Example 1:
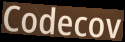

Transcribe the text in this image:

Codecov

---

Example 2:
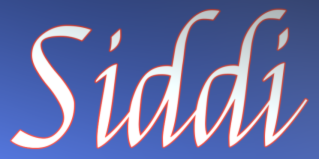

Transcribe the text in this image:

Siddi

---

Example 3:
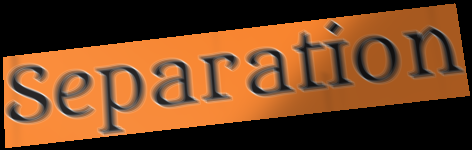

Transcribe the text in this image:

Separation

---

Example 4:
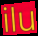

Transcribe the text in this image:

ilu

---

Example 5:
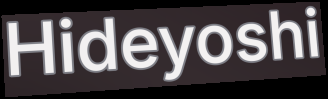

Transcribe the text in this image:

Hideyoshi